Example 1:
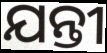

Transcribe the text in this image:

ଯନ୍ତୀ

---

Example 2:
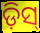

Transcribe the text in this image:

ଡ଼ିସ୍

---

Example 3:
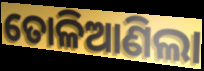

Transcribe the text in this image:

ତୋଳିଆଣିଲା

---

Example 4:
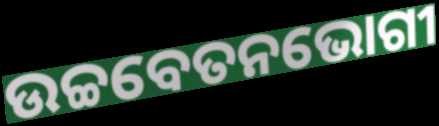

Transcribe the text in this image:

ଉଚ୍ଚବେତନଭୋଗୀ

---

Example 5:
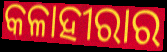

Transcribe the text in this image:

କଳାହୀରାର